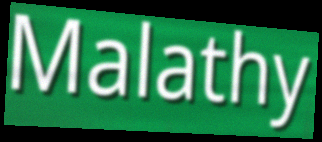
Malathy